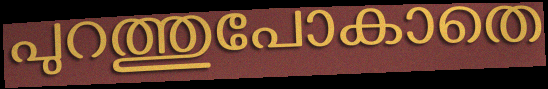
പുറത്തുപോകാതെ